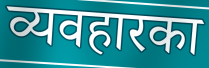
व्यवहारका